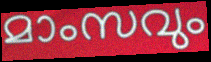
മാംസവും